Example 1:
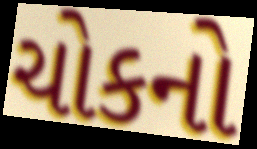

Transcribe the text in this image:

ચોકનો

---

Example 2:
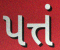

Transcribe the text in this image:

પત્તં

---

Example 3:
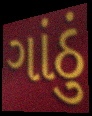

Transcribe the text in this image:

ગાંઠું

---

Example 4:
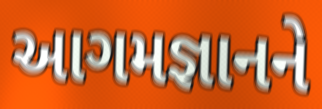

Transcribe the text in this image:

આગમજ્ઞાનને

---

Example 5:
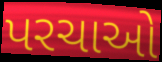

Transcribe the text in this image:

પરચાઓ